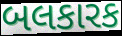
બલકારક